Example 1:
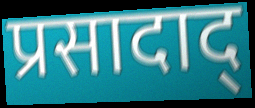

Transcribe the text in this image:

प्रसादाद्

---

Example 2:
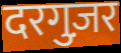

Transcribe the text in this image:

दरगुज़र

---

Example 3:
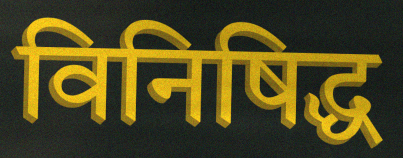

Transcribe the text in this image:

विनिषिद्ध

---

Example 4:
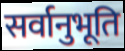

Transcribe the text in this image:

सर्वानुभूति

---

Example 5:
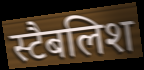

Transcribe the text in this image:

स्टैबलिश